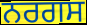
ਨਰਗਸ